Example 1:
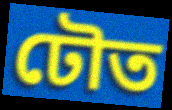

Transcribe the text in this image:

ঢৌত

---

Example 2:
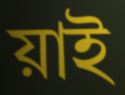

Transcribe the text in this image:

য়াই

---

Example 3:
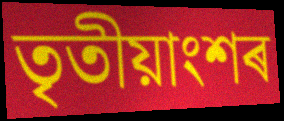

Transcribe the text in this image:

তৃতীয়াংশৰ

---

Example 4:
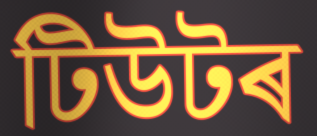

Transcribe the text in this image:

টিউটৰ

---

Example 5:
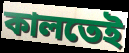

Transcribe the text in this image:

কালতেই